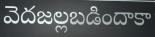
వెదజల్లబడిందాకా